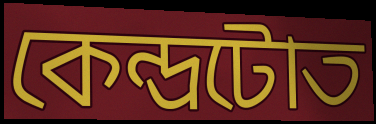
কেন্দ্ৰটোত